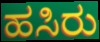
ಹಸಿರು